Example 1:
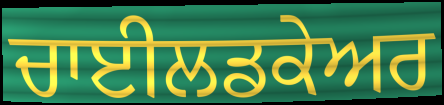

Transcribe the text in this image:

ਚਾਈਲਡਕੇਅਰ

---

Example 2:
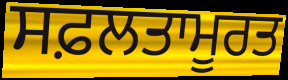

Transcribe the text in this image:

ਸਫ਼ਲਤਾਮੂਰਤ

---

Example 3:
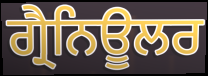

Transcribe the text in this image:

ਗ੍ਰੈਨਿਊਲਰ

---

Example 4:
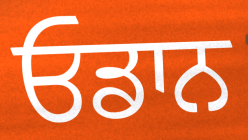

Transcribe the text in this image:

ਓਡਾਨ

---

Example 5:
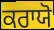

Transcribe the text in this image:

ਕਰਾਯੋ